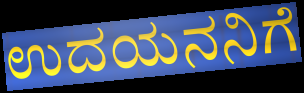
ಉದಯನನಿಗೆ